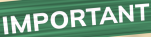
IMPORTANT